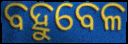
ବହୁବେଳ